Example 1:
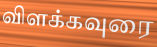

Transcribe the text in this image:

விளக்கவுரை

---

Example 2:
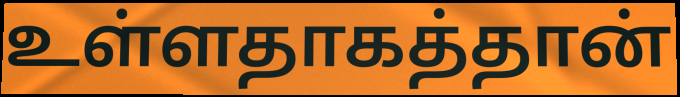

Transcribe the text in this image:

உள்ளதாகத்தான்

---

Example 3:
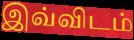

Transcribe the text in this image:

இவ்விடம்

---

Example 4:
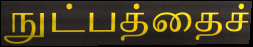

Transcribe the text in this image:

நுட்பத்தைச்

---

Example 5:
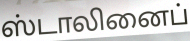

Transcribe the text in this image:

ஸ்டாலினைப்